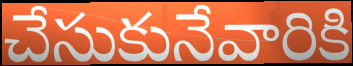
చేసుకునేవారికి